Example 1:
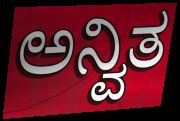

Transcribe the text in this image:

ಅನ್ವಿತ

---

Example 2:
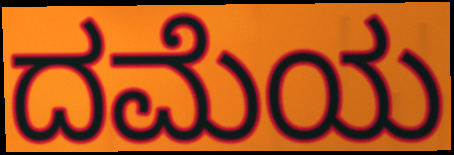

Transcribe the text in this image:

ದಮೆಯ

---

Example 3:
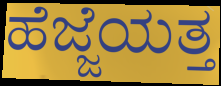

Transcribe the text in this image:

ಹೆಜ್ಜೆಯತ್ತ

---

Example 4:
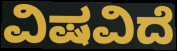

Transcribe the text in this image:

ವಿಷವಿದೆ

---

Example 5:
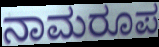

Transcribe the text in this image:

ನಾಮರೂಪ